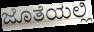
ಜೊತೆಯಲ್ಲಿ